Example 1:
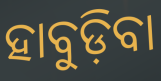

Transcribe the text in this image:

ହାବୁଡ଼ିବା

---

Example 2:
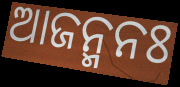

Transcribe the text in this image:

ଆଜନ୍ମନଃ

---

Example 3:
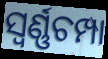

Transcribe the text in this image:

ସ୍ୱର୍ଣ୍ଣଚମ୍ପା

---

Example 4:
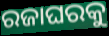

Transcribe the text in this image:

ରଜାଘରକୁ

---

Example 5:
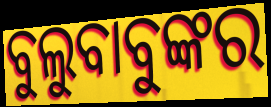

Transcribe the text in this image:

ବୁଲୁବାବୁଙ୍କର